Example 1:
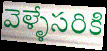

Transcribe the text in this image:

వెళ్ళేసరికి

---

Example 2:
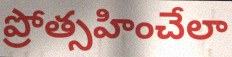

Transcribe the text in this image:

ప్రోత్సహించేలా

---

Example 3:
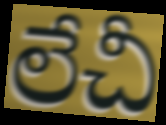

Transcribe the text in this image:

లేచీ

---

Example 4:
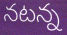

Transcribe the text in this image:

నటన్న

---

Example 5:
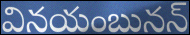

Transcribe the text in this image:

వినయంబునన్